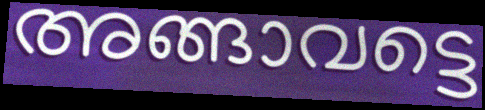
അങ്ങാവട്ടെ